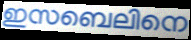
ഇസബെലിനെ